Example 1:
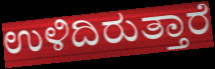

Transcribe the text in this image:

ಉಳಿದಿರುತ್ತಾರೆ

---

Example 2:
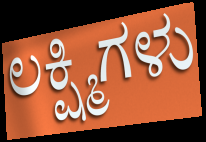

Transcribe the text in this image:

ಲಕ್ಷ್ಮಿಗಳು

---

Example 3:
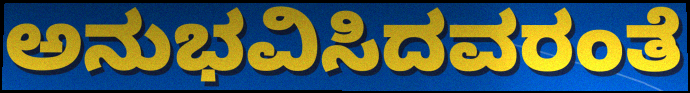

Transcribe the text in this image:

ಅನುಭವಿಸಿದವರಂತೆ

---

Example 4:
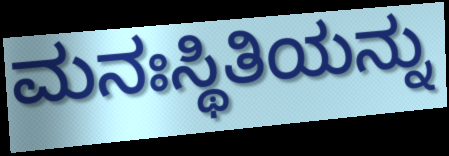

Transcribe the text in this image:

ಮನಃಸ್ಥಿತಿಯನ್ನು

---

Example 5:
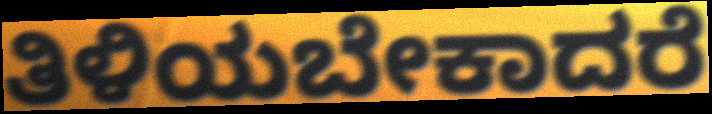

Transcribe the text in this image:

ತಿಳಿಯಬೇಕಾದರೆ